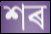
শৰ